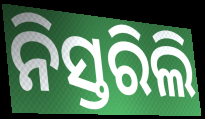
ନିସ୍ତରିଲି